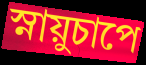
স্নায়ুচাপে